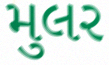
મુલર